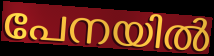
പേനയിൽ